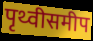
पृथ्वीसमीप